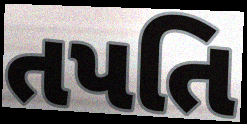
તપતિ